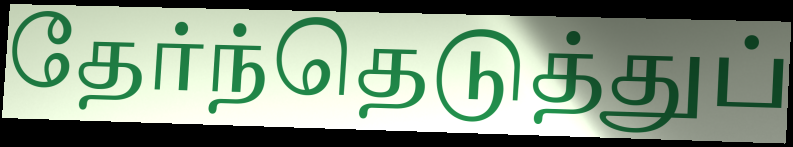
தேர்ந்தெடுத்துப்